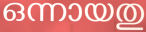
ഒന്നായതു